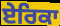
ਏਰਿਕਾ